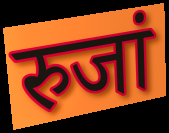
रुजां